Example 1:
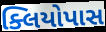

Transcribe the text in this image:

ક્લિયોપાસ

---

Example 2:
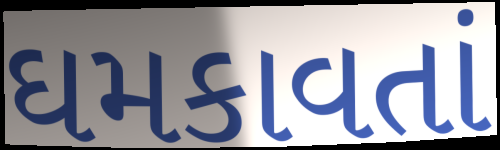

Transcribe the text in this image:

ઘમકાવતાં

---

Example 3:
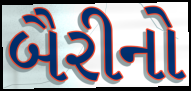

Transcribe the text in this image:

બૈરીનો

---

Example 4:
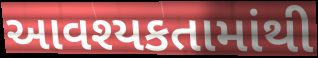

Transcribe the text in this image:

આવશ્યકતામાંથી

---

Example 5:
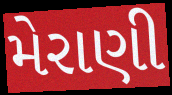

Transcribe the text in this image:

મેરાણી